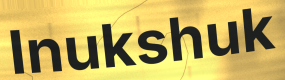
Inukshuk